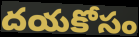
దయకోసం